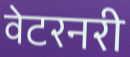
वेटरनरी